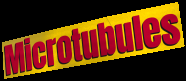
Microtubules